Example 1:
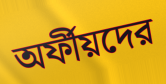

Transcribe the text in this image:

অর্ফীয়দের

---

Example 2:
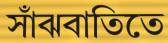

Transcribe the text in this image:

সাঁঝবাতিতে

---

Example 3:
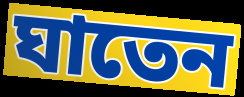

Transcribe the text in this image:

ঘাতেন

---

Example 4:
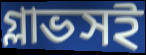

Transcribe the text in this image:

গ্লাভসই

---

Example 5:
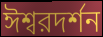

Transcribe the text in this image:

ঈশ্বরদর্শন